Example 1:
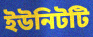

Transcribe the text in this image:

ইউনিটটি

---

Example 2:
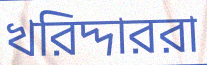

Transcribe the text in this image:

খরিদ্দাররা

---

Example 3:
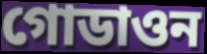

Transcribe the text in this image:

গোডাওন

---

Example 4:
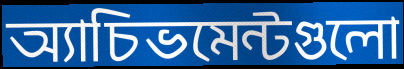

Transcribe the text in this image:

অ্যাচিভমেন্টগুলো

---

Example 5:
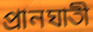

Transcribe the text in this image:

প্রানঘাতী